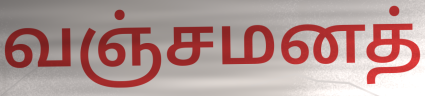
வஞ்சமனத்